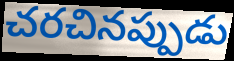
చరచినప్పుడు